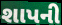
શાપની